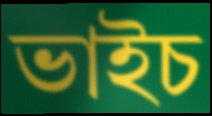
ভাইচ